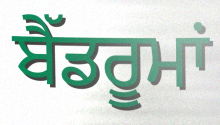
ਬੈੱਡਰੂਮਾਂ